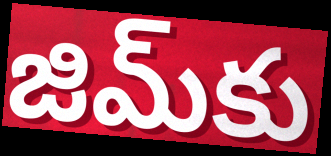
జిమ్‌కు